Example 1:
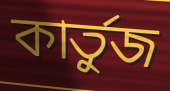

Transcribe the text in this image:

কার্তুজ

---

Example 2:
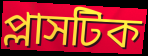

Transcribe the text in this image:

প্লাসটিক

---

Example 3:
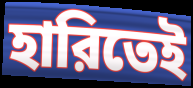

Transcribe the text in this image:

হারিতেই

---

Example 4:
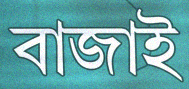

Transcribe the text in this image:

বাজাই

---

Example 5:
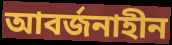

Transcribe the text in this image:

আবর্জনাহীন